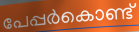
പേപ്പർകൊണ്ട്